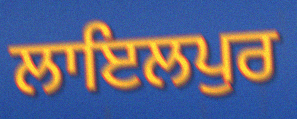
ਲਾਇਲਪੁਰ